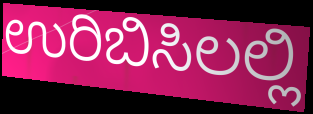
ಉರಿಬಿಸಿಲಲ್ಲಿ